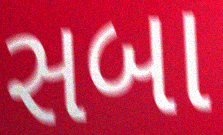
સબા